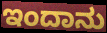
ಇಂದಾನು